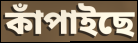
কাঁপাইছে